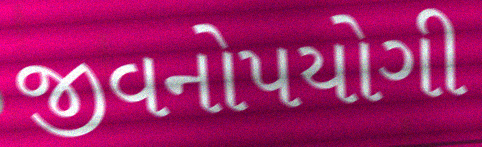
જીવનોપયોગી